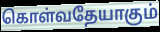
கொள்வதேயாகும்